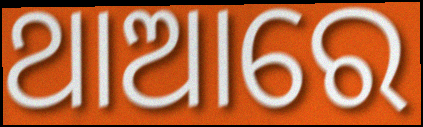
ଥାଆରେ